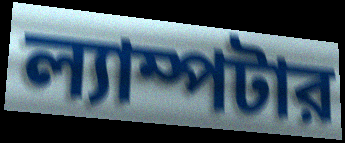
ল্যাম্পটার